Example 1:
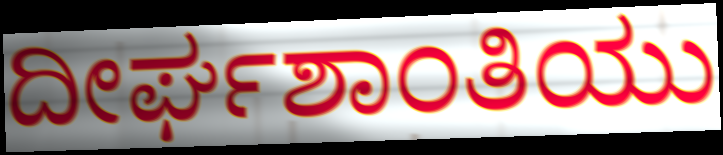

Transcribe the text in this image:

ದೀರ್ಘಶಾಂತಿಯು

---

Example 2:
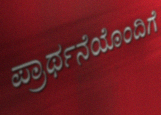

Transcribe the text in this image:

ಪ್ರಾರ್ಥನೆಯೊಂದಿಗೆ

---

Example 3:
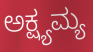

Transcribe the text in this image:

ಅಕ್ಷ್ಯಮ್ಯ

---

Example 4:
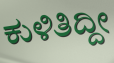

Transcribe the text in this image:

ಕುಳಿತಿದ್ದೀ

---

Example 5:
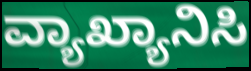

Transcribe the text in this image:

ವ್ಯಾಖ್ಯಾನಿಸಿ